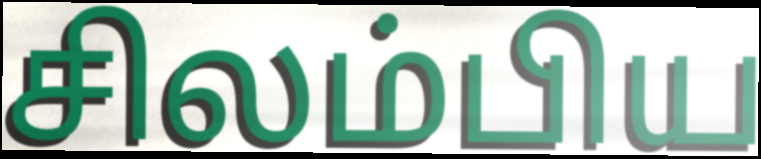
சிலம்பிய